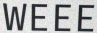
WEEE